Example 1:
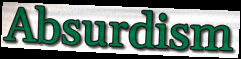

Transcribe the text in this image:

Absurdism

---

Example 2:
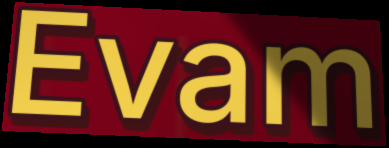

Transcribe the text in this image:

Evam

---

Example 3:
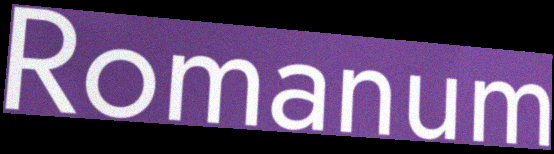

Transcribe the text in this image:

Romanum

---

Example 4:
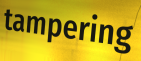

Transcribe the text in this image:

tampering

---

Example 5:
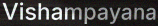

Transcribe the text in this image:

Vishampayana